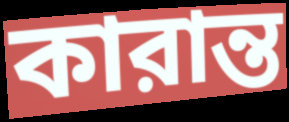
কারান্ত